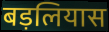
बड़लियास